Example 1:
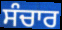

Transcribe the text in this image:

ਸੰਚਾਰ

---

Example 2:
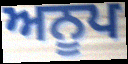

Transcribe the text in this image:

ਅਨੂਪ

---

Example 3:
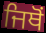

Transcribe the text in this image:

ਜਿਥੋਂ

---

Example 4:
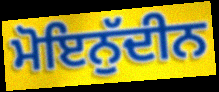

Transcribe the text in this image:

ਮੋਇਨੁੱਦੀਨ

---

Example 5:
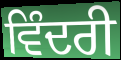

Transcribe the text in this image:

ਵਿੰਦਰੀ